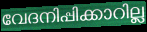
വേദനിപ്പിക്കാറില്ല